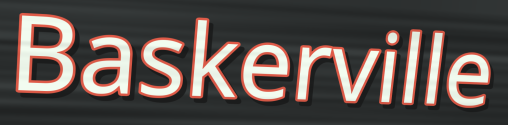
Baskerville